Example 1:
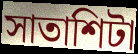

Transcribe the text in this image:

সাতাশিটা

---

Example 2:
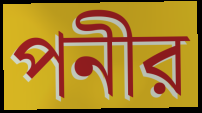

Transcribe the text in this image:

পনীর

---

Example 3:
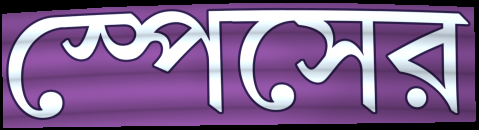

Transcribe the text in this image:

স্পেসের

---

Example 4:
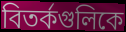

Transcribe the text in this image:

বিতর্কগুলিকে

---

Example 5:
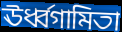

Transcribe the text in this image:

ঊর্ধ্বগামিতা